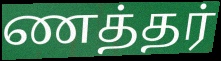
ணத்தர்